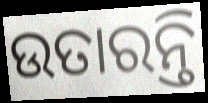
ଉତାରନ୍ତି